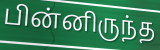
பின்னிருந்த